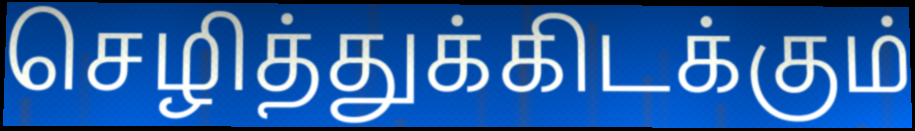
செழித்துக்கிடக்கும்